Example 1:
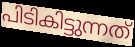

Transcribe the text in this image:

പിടികിട്ടുന്നത്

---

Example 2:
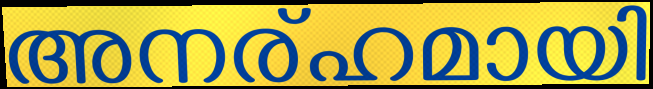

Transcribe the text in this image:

അനര്ഹമായി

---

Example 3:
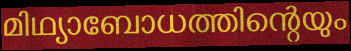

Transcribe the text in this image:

മിഥ്യാബോധത്തിന്റെയും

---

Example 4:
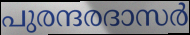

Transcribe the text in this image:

പുരന്ദരദാസർ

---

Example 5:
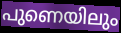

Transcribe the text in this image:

പുണെയിലും